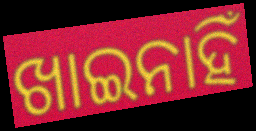
ଖାଇନାହିଁ